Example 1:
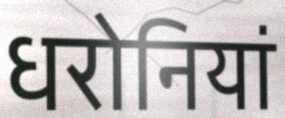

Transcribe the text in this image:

धरोनियां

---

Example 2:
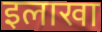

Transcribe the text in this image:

इलाखा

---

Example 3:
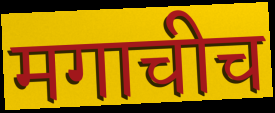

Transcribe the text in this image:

मगाचीच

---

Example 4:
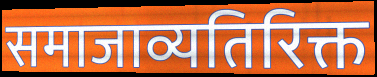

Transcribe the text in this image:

समाजाव्यतिरिक्त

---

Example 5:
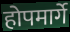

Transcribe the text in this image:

होपमार्गे